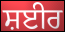
ਸ਼ਈਰ